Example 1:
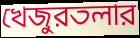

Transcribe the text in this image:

খেজুরতলার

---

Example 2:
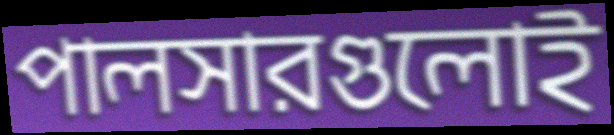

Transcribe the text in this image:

পালসারগুলোই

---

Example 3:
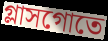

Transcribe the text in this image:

গ্লাসগোতে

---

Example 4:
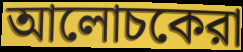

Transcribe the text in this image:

আলোচকেরা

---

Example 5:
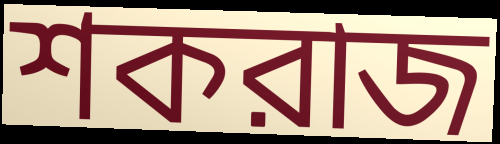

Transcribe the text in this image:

শকরাজ